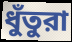
ধুঁতুরা